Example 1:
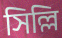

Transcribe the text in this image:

সিল্লি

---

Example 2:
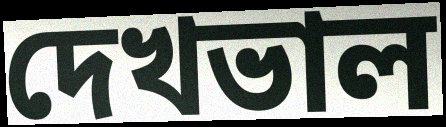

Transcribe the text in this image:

দেখভাল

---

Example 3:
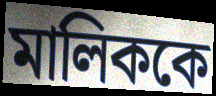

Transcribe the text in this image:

মালিককে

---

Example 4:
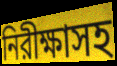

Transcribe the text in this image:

নিরীক্ষাসহ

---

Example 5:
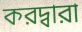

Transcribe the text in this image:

করদ্বারা